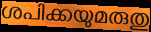
ശപിക്കയുമരുതു